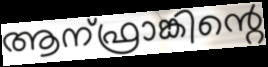
ആന്ഫ്രാങ്കിന്റെ